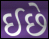
ઈછે